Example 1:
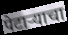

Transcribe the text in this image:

पेटाऱ्याचा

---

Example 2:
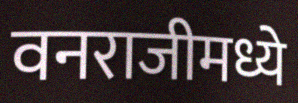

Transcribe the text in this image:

वनराजीमध्ये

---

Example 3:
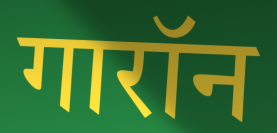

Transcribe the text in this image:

गारॉन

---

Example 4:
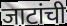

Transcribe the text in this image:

जाटांची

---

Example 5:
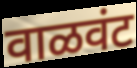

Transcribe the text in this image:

वाळवंट